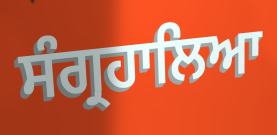
ਸੰਗ੍ਰਹਾਲਿਆ